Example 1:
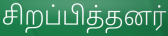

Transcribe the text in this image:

சிறப்பித்தனர்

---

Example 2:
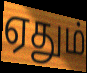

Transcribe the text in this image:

ஏதும்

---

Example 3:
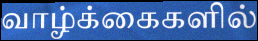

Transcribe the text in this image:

வாழ்க்கைகளில்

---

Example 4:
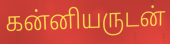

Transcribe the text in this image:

கன்னியருடன்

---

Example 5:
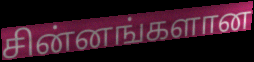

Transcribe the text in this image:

சின்னங்களான